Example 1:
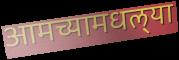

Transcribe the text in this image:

आमच्यामधल्या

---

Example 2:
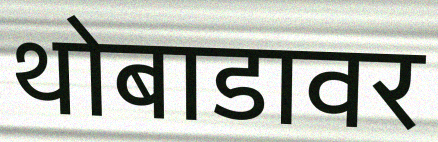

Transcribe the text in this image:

थोबाडावर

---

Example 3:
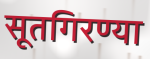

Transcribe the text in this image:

सूतगिरण्या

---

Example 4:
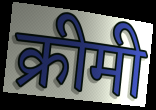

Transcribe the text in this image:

क्रीमी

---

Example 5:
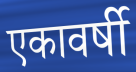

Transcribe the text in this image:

एकावर्षी